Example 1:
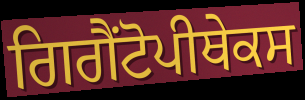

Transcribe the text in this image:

ਗਿਗੈਂਟੋਪੀਥੇਕਸ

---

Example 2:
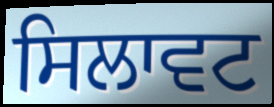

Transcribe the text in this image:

ਸਿਲਾਵਟ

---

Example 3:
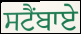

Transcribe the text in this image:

ਸਟੈਂਬਾਏ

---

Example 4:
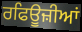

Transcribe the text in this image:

ਰਫਿਊਜ਼ੀਆਂ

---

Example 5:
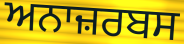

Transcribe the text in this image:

ਅਨਾਜ਼ਰਬਸ